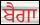
ਬੈਗਾ